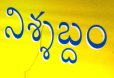
నిశ్శబ్దం